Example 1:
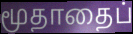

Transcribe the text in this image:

மூதாதைப்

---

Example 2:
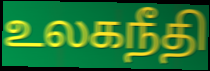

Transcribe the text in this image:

உலகநீதி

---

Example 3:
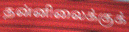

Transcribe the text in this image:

தன்னிலைக்குக்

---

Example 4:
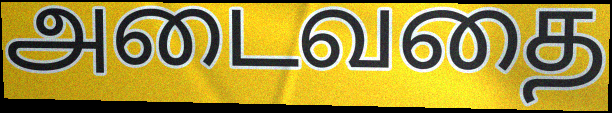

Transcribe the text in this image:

அடைவதை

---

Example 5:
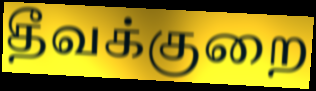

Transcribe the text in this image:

தீவக்குறை